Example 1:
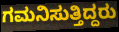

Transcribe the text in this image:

ಗಮನಿಸುತ್ತಿದ್ದರು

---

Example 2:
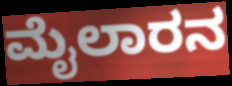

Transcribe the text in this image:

ಮೈಲಾರನ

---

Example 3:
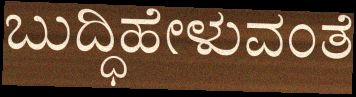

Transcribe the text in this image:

ಬುದ್ಧಿಹೇಳುವಂತೆ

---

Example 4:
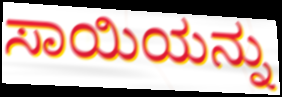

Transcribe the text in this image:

ಸಾಯಿಯನ್ನು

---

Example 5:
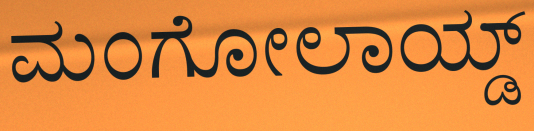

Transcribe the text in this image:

ಮಂಗೋಲಾಯ್ಡ್